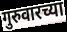
गुरुवारच्या